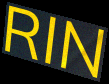
RIN